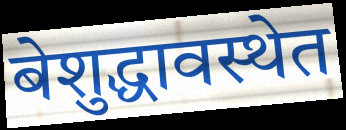
बेशुद्धावस्थेत